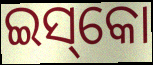
ଇସ୍‌କୋ